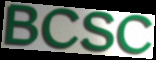
BCSC